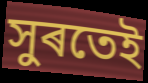
সুৰতেই